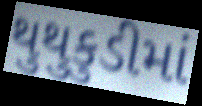
થુથુકુડીમાં